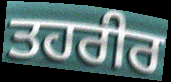
ਤਹਰੀਰ